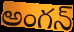
అంగన్